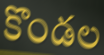
కొండల